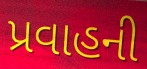
પ્રવાહની